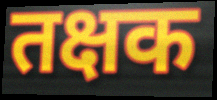
तक्षक